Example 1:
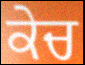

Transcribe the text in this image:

ਕੇਚ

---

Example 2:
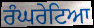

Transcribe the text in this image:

ਰੰਘਰੇਟਿਆ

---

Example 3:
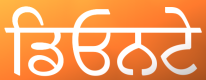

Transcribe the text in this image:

ਡਿਓਨਟੇ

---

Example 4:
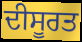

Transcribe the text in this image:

ਦੀਸੂਰਤ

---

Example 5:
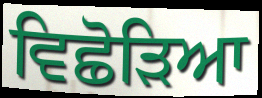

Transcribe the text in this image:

ਵਿਛੋੜਿਆ